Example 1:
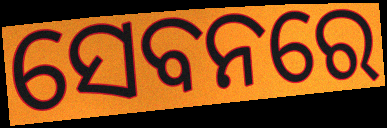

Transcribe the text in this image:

ସେବନରେ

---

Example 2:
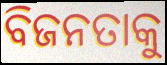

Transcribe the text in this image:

ବିଜନତାକୁ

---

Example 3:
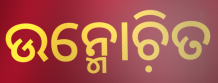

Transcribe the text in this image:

ଉନ୍ମୋଚ଼ିତ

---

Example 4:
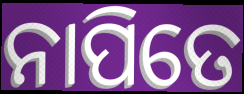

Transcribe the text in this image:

ନାପିତେ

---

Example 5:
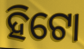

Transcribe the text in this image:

ହିଟୋ